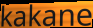
kakane